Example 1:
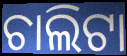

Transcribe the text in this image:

ଚାଲିଟା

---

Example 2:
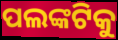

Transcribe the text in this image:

ପଲଙ୍କଟିକୁ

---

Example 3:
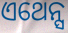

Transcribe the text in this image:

ଏଥେନ୍ସ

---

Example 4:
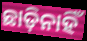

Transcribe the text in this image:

ଛାଡ଼ିନାହିଁ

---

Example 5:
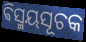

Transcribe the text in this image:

ଵିସ୍ମୟସୂଚକ